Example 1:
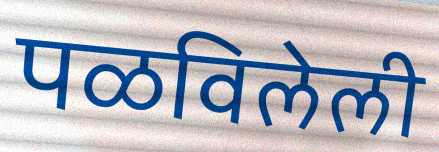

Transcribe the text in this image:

पळविलेली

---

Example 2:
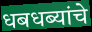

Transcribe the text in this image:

धबधब्यांचे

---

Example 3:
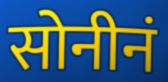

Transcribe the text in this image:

सोनीनं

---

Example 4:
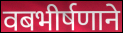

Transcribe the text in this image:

वबभीर्षणाने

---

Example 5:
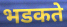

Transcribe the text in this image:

भडकते